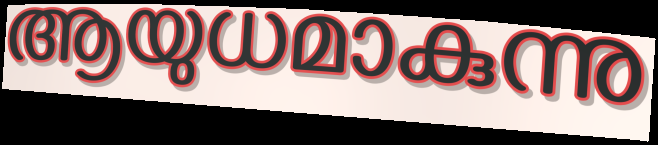
ആയുധമാകുന്നു